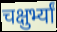
चक्षुर्भ्यां